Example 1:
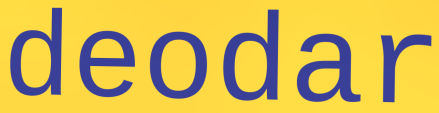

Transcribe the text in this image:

deodar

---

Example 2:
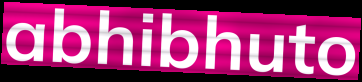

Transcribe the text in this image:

abhibhuto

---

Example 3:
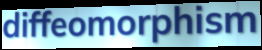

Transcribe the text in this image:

diffeomorphism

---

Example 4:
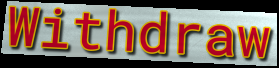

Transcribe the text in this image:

Withdraw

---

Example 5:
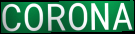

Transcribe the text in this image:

CORONA